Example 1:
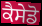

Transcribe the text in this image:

ਕੈਸੇਡੋ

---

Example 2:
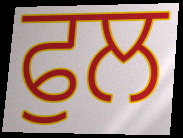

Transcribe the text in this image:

ਫੁਲ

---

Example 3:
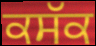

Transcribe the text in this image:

ਕਸੱਕ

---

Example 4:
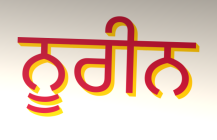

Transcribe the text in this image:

ਨੂਰੀਨ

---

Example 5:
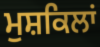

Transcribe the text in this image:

ਮੁਸ਼ਕਿਲਾਂ